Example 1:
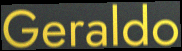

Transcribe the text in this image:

Geraldo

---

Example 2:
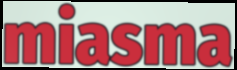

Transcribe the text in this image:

miasma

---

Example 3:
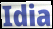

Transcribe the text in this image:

Idia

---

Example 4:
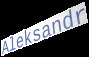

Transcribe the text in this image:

Aleksandr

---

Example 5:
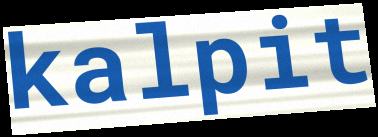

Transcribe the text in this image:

kalpit